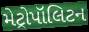
મેટ્રોપૉલિટન